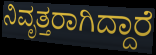
ನಿವೃತ್ತರಾಗಿದ್ದಾರೆ